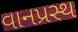
વાનપ્રસ્થ